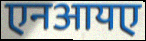
एनआयए